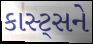
કાસ્ટ્સને